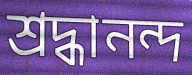
শ্ৰদ্ধানন্দ